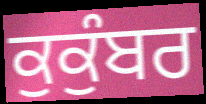
ਕੁਕੁੰਬਰ